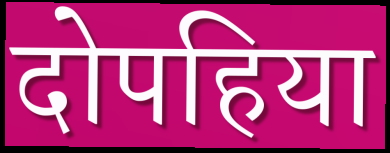
दोपहिया